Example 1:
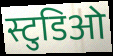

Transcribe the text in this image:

स्टुडिओ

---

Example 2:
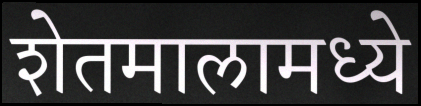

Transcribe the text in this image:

शेतमालामध्ये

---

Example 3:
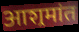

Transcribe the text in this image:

आश्रमांत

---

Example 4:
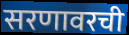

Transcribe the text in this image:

सरणावरची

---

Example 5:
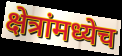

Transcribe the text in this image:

क्षेत्रांमध्येच